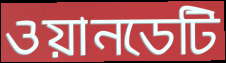
ওয়ানডেটি